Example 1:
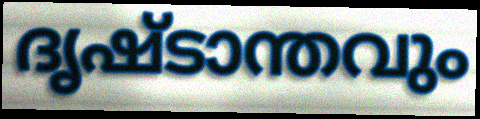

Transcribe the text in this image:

ദൃഷ്ടാന്തവും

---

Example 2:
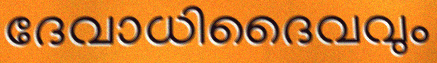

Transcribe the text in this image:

ദേവാധിദൈവവും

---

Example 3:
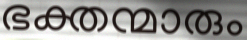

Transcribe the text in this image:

ഭക്തന്മാരും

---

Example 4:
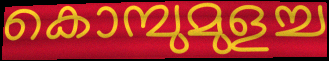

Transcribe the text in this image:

കൊമ്പുമുളച്ച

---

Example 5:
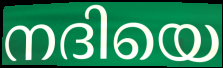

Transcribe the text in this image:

നദിയെ